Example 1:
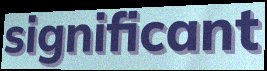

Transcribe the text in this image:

significant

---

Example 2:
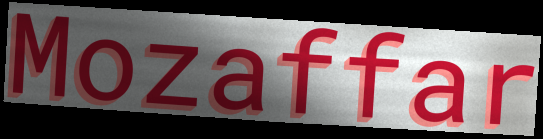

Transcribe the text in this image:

Mozaffar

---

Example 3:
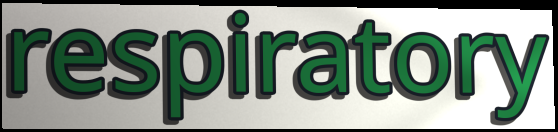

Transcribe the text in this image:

respiratory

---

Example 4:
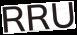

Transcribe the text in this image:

RRU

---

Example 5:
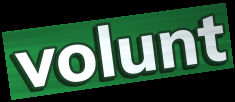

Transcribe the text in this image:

volunt